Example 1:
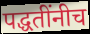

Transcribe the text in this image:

पद्धतींनीच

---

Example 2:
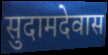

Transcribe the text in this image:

सुदामदेवास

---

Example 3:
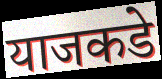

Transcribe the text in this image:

याजकडे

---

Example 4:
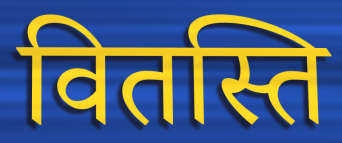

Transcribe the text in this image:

वितस्ति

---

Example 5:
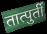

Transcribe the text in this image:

तात्पुर्ती